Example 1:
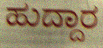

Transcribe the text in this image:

ಹುದ್ದಾರ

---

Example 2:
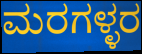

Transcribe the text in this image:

ಮರಗಳ್ಳರ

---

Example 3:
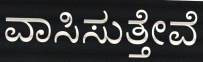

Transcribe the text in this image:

ವಾಸಿಸುತ್ತೇವೆ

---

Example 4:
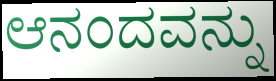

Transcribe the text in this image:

ಆನಂದವನ್ನು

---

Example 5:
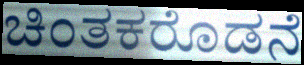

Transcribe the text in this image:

ಚಿಂತಕರೊಡನೆ